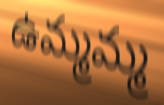
ఉమ్మమ్మ